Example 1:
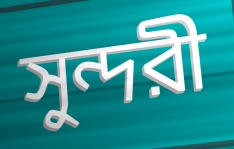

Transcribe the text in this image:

সুন্দরী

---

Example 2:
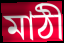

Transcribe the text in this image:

মাঠী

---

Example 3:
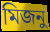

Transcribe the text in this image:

মিজনু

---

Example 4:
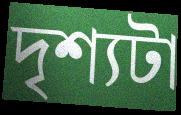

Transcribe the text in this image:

দৃশ্যটা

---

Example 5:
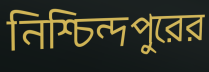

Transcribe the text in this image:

নিশ্চিন্দপুরের